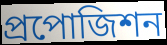
প্রপোজিশন